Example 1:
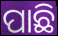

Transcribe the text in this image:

ପାଛି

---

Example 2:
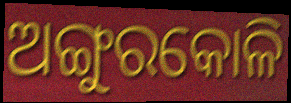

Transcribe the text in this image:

ଅଙ୍ଗୁରକୋଳି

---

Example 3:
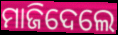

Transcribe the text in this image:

ମାଜିଦେଲେ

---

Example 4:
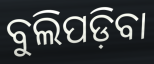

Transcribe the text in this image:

ବୁଲିପଡ଼ିବା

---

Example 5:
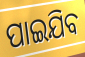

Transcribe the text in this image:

ପାଇଯିବ